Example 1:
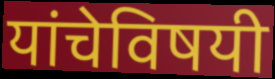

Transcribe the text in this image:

यांचेविषयी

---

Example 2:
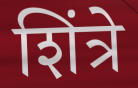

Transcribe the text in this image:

शिंत्रे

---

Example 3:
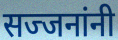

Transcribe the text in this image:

सज्जनांनी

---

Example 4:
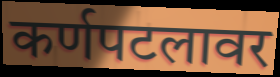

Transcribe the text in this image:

कर्णपटलावर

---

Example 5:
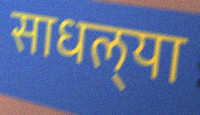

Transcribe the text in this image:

साधल्या